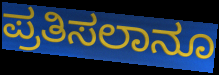
ಪ್ರತಿಸಲಾನೂ